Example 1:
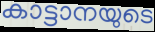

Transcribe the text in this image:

കാട്ടാനയുടെ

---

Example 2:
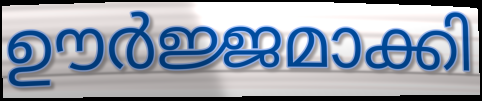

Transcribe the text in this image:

ഊർജ്ജമാക്കി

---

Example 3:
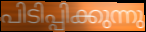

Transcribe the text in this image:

പിടിപ്പിക്കുന്നു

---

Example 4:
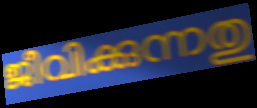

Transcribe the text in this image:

ജീവിക്കുന്നതു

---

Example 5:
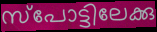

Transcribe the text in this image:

സ്പോട്ടിലേക്കു